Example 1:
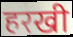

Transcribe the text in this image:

हरखी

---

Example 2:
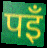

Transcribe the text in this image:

पइँ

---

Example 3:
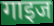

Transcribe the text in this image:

गाइज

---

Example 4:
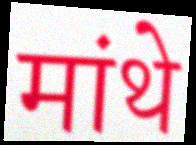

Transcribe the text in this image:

मांथे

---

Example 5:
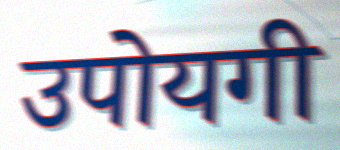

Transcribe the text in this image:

उपोयगी